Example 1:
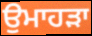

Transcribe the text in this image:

ਉਮਾਹੜਾ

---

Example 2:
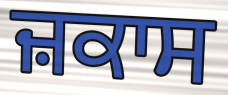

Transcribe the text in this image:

ਜ਼ਕਾਸ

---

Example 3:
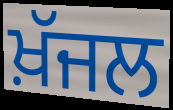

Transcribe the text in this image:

ਖ਼ੱਜਲ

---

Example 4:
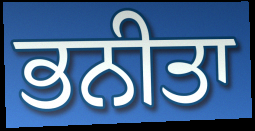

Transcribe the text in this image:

ਭਨੀਤਾ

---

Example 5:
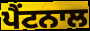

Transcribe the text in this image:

ਪੈਂਟਨਾਲ